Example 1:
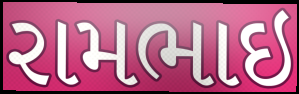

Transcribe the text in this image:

રામભાઇ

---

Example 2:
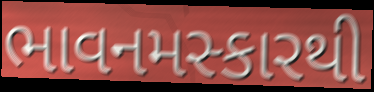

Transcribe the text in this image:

ભાવનમસ્કારથી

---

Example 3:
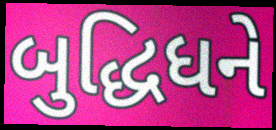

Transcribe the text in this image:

બુદ્ધિધને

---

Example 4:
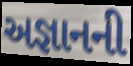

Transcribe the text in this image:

અજ્ઞાનની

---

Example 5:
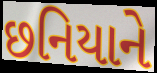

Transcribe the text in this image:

છનિયાને